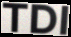
TDI